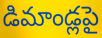
డిమాండ్లపై